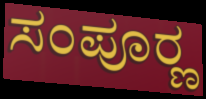
ಸಂಪೂರ್‍ಣ